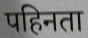
पहिनता